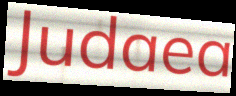
Judaea